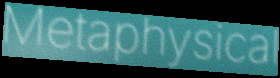
Metaphysical